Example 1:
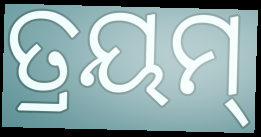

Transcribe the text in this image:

ତ୍ରୟମ୍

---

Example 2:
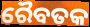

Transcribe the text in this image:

ରୈବତକ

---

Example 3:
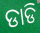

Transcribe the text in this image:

ଡାଡି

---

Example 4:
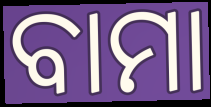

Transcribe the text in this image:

ବାମା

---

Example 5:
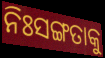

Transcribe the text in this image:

ନିଃସଙ୍ଗତାକୁ